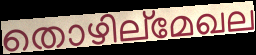
തൊഴില്മേഖല